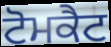
ਟੋਮਕੈਟ